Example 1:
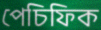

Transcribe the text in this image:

পেচিফিক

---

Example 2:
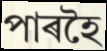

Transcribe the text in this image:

পাৰহৈ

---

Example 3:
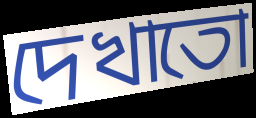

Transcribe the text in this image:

দেখাতো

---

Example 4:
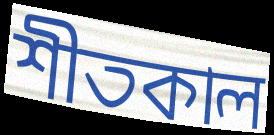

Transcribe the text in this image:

শীতকাল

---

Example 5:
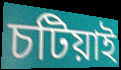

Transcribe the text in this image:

চটিয়াই